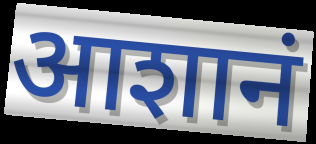
आशानं